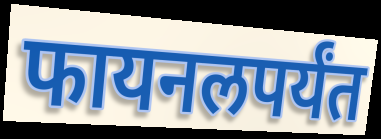
फायनलपर्यंत